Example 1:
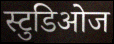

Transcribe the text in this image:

स्टुडिओज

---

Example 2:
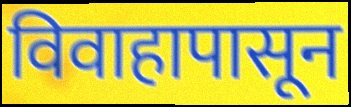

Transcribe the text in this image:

विवाहापासून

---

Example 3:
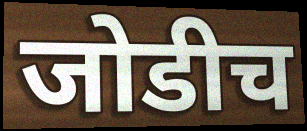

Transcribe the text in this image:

जोडीच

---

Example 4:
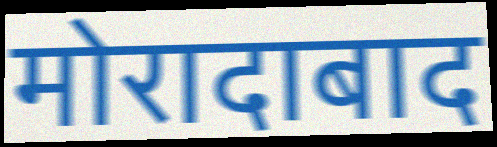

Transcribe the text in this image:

मोरादाबाद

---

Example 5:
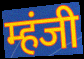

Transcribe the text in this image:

म्हंजी